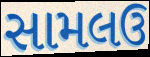
સામલઉ